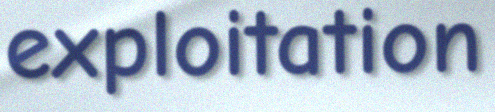
exploitation